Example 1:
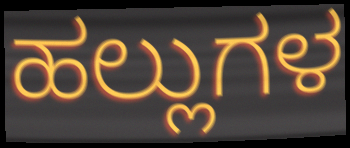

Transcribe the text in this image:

ಹಲ್ಲುಗಳ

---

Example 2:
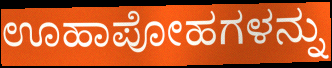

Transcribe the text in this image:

ಊಹಾಪೋಹಗಳನ್ನು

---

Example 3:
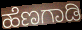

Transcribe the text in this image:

ಹೆಣಗಾಡಿ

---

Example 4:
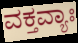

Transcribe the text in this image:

ವಕ್ತವ್ಯಾಃ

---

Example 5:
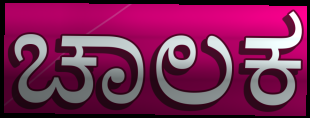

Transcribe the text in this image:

ಚಾಲಕ